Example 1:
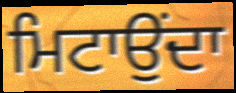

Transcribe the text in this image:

ਮਿਟਾਉਂਦਾ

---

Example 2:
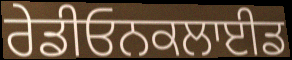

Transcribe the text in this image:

ਰੇਡੀਓਨਕਲਾਈਡ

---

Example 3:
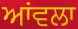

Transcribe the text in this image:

ਆਂਵਲਾ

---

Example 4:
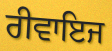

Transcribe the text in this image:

ਰੀਵਾਇਜ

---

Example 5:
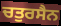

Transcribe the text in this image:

ਚਤੁਰਸੈਨ